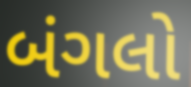
બંગલો